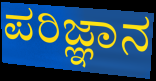
ಪರಿಜ್ಞಾನ